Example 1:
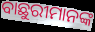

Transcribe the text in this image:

ବାଛୁରୀମାନଙ୍କ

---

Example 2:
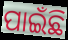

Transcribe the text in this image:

ପାଇଁଛି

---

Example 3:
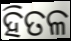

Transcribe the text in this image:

ହିତଳ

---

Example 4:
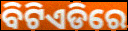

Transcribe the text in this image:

ବିଟିଏଡିରେ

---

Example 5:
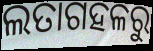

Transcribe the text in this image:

ଲତାଗହଳରୁ